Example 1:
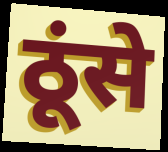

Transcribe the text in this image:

ठूंसे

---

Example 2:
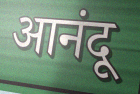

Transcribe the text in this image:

आनंदू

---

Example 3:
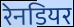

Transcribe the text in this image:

रेनडियर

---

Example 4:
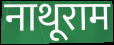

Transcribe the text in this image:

नाथूराम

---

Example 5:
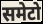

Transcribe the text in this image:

समेटो